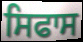
ਸਿਫਾਸ